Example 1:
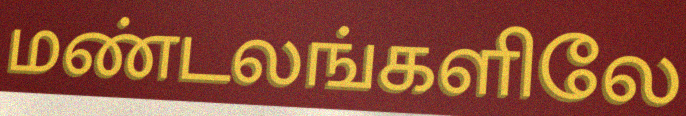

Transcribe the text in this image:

மண்டலங்களிலே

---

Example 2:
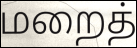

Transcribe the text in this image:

மறைத்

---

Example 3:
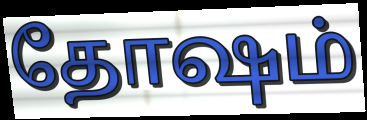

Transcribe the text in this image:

தோஷம்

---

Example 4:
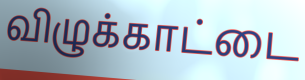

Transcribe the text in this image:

விழுக்காட்டை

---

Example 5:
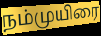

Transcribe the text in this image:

நம்முயிரை